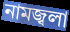
নামজ্বলা